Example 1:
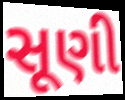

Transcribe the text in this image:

સૂણી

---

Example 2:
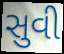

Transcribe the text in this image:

સુવી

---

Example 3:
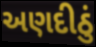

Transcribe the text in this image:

અણદીઠું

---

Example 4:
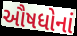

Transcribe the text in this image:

ઔષધોનાં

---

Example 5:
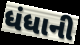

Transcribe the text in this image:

ધંધાની